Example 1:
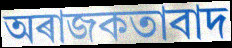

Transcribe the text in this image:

অৰাজকতাবাদ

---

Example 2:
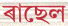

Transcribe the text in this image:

ৰাছেল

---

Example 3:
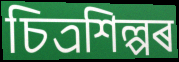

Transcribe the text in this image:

চিত্ৰশিল্পৰ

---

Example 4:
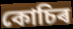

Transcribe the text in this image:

কোচিৰ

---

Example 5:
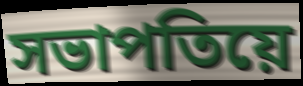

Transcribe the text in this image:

সভাপতিয়ে